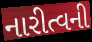
નારીત્વની